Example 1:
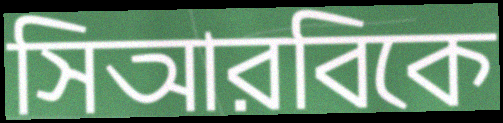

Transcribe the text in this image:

সিআরবিকে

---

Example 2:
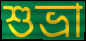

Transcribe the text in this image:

শুভ্রা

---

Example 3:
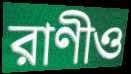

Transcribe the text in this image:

রাণীও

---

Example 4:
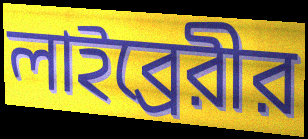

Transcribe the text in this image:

লাইব্রেরীর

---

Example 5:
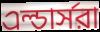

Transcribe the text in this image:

এল্ডার্সরা